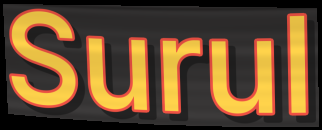
Surul